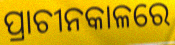
ପ୍ରାଚୀନକାଳରେ